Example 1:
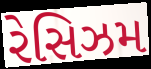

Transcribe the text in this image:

રેસિઝમ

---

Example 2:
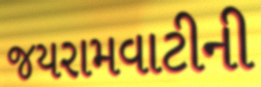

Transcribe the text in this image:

જયરામવાટીની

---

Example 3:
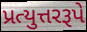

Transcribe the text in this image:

પ્રત્યુત્તરરૂપે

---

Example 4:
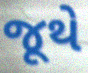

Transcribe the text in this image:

જૂથે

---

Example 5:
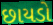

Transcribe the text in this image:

છાયડો